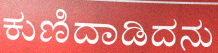
ಕುಣಿದಾಡಿದನು